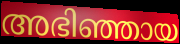
അഭിഞ്ഞായ